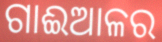
ଗାଈଆଳର